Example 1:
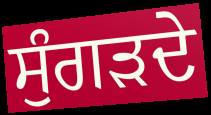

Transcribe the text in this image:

ਸੁੰਗੜਦੇ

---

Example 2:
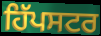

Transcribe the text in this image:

ਹਿੱਪਸਟਰ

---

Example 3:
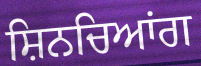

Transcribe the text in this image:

ਸ਼ਿਨਚਿਆਂਗ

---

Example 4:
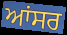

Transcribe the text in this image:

ਆਂਸਰ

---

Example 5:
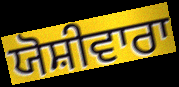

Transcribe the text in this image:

ਯੋਸ਼ੀਵਾਰਾ